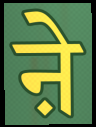
ऩे